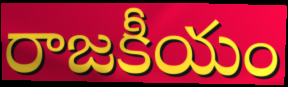
రాజకీయం